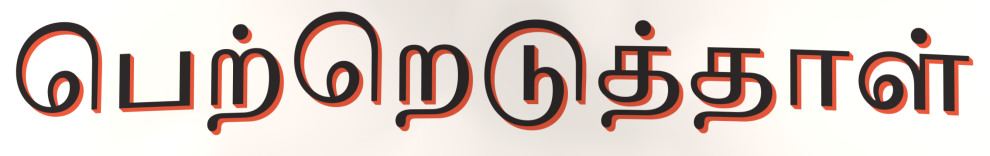
பெற்றெடுத்தாள்